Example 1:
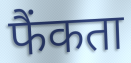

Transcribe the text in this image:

फैंकता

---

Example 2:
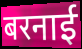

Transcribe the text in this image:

बरनाई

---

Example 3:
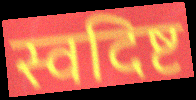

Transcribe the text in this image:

स्वदिष्ट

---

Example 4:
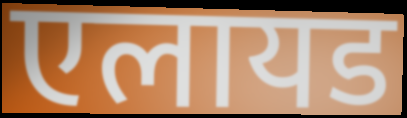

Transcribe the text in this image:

एलायड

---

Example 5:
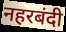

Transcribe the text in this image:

नहरबंदी